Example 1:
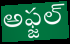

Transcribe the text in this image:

అఫ్జల్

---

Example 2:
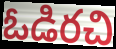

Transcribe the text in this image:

ఓడిరచి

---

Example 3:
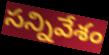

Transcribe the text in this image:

సన్నివేశం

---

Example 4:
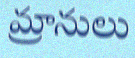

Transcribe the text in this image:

మ్రానులు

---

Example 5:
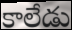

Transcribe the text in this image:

కాలేడు